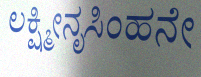
ಲಕ್ಷ್ಮೀನೃಸಿಂಹನೇ